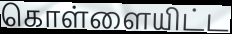
கொள்ளையிட்ட